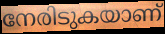
നേരിടുകയാണ്